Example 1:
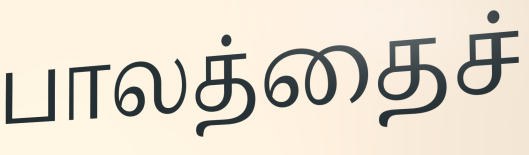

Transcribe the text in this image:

பாலத்தைச்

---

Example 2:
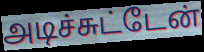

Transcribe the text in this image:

அடிச்சுட்டேன்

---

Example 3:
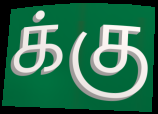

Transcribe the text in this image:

க்கு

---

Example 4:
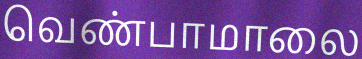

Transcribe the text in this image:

வெண்பாமாலை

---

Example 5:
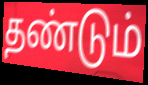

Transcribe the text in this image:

தண்டும்